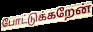
போட்டுக்கறேன்